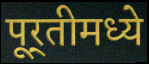
पूर्तीमध्ये